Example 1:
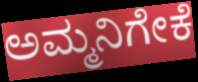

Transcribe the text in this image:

ಅಮ್ಮನಿಗೇಕೆ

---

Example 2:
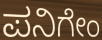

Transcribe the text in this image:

ಪನಿಗೇಂ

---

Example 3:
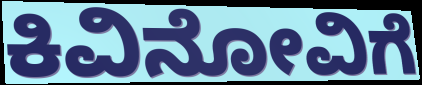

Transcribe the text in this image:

ಕಿವಿನೋವಿಗೆ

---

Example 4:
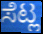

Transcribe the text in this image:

ಸೆಟ್ಲ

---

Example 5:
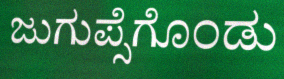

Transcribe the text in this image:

ಜುಗುಪ್ಸೆಗೊಂಡು